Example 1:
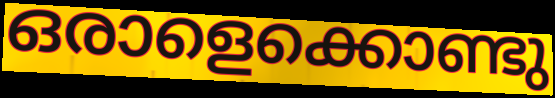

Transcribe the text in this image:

ഒരാളെക്കൊണ്ടു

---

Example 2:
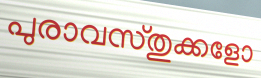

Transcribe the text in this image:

പുരാവസ്തുക്കളോ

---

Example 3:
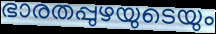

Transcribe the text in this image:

ഭാരതപ്പുഴയുടെയും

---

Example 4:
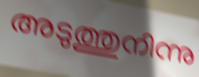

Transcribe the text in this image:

അടുത്തുനിന്നു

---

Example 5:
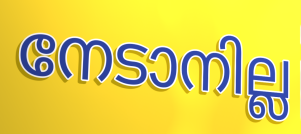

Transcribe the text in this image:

നേടാനില്ല